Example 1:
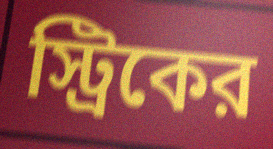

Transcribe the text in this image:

স্ট্রিকের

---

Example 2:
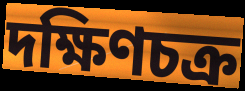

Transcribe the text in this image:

দক্ষিণচক্র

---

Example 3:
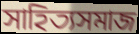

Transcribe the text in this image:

সাহিত্যসমাজ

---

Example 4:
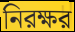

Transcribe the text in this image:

নিরক্ষর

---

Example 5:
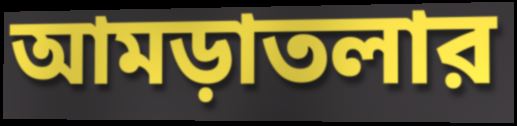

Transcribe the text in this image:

আমড়াতলার